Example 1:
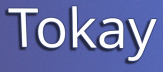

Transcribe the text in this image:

Tokay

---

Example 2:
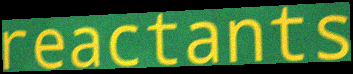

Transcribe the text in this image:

reactants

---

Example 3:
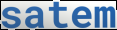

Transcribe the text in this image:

satem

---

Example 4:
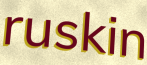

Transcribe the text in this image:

ruskin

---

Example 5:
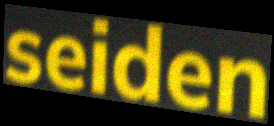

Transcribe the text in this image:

seiden